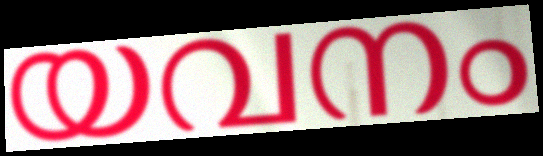
യവനം